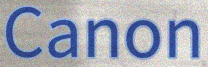
Canon